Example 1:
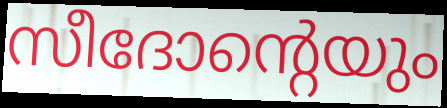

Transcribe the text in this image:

സീദോന്റെയും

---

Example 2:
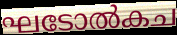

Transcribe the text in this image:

ഘടോൽകച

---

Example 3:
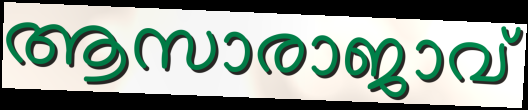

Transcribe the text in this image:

ആസാരാജാവ്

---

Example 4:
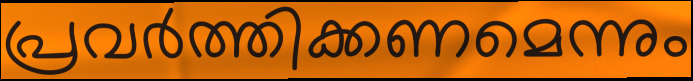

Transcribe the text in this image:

പ്രവർത്തിക്കണമെന്നും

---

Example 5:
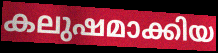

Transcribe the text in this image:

കലുഷമാക്കിയ